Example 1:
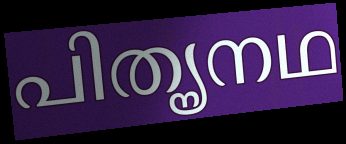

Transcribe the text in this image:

പിതൄനഥ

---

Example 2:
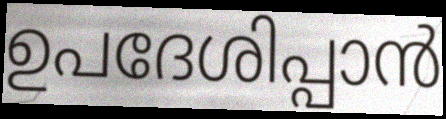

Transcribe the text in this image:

ഉപദേശിപ്പാൻ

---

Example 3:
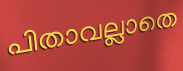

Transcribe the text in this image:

പിതാവല്ലാതെ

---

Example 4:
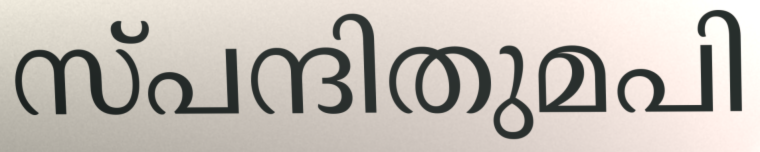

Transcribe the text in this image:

സ്പന്ദിതുമപി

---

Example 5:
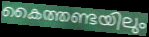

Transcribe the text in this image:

കൈത്തണ്ടയിലും